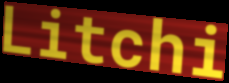
Litchi